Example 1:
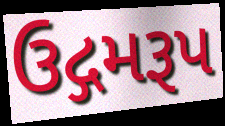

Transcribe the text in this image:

ઉદ્ગમરૂપ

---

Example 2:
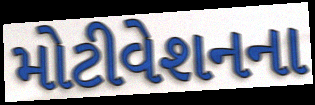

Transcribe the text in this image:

મોટીવેશનના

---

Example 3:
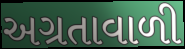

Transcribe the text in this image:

અગ્રતાવાળી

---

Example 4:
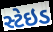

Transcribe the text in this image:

સ્ટેઇડ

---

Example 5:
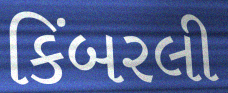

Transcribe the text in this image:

કિંબરલી